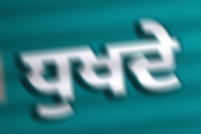
ਧੁਖਦੇ